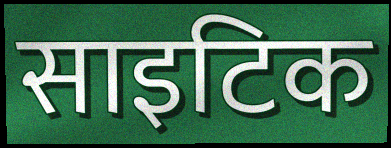
साइटिक